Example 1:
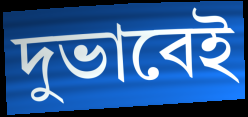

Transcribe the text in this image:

দুভাবেই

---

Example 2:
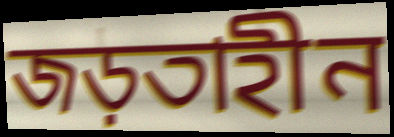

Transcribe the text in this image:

জড়তাহীন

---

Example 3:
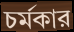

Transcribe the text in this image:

চর্মকার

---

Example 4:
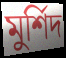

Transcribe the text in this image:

মুর্শিদ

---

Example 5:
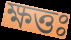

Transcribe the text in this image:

ক্ষত্তঃ